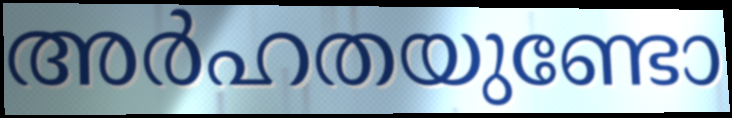
അർഹതയുണ്ടോ